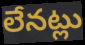
లేనట్లు